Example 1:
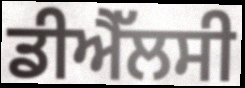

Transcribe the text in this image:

ਡੀਐੱਲਸੀ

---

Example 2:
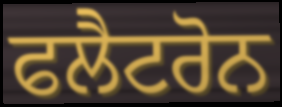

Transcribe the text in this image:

ਫਲੈਟਰੋਨ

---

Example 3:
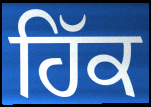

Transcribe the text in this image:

ਹਿੱਕ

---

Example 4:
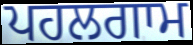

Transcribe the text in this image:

ਪਹਲਗਾਮ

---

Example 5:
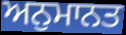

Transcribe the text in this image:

ਅਨੁਮਾਨਤ